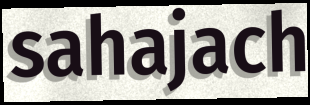
sahajach